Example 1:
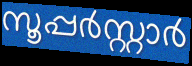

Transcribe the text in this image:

സൂപ്പർസ്റ്റാർ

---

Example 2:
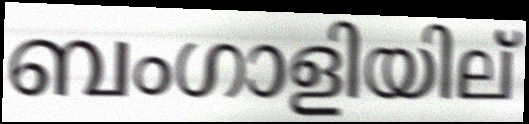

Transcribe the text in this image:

ബംഗാളിയില്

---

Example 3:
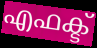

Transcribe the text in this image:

എഫക്ട്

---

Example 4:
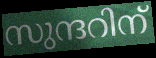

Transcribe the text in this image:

സുന്ദറിന്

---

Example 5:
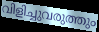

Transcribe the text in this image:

വിളിച്ചുവരുത്തും